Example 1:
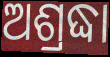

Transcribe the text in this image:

ଅଶ୍ରଦ୍ଧା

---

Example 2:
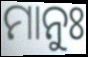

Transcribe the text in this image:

ମାନୁଃ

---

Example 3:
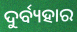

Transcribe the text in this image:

ଦୁର୍ବ୍ୟହାର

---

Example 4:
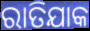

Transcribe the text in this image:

ରାତିଯାକ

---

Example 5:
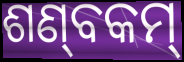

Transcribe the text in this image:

ଶଣ୍‌ବକମ୍